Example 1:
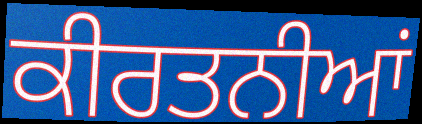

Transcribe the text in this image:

ਕੀਰਤਨੀਆਂ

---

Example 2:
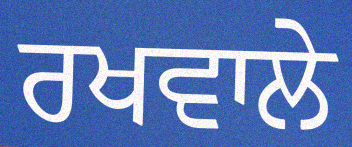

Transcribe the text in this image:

ਰਖਵਾਲੇ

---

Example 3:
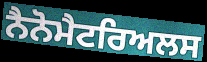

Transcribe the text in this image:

ਨੈਨੋਮੈਟਰਿਅਲਸ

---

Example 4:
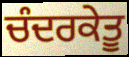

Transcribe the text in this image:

ਚੰਦਰਕੇਤੂ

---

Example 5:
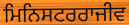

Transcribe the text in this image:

ਮਿਨਿਸਟਰਰਾਜੀਵ